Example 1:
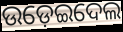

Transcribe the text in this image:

ଉଡ଼େଇଦେଲ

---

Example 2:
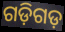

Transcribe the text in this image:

ଗଡ଼ିଗଡ଼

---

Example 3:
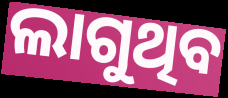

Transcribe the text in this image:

ଲାଗୁଥିବ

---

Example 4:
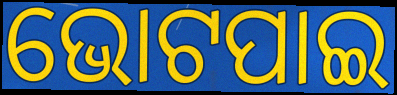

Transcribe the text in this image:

ଭୋଟପାଇ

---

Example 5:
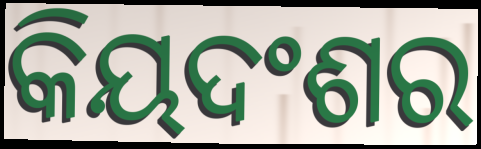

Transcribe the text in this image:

କିୟଦଂଶର